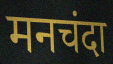
मनचंदा